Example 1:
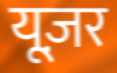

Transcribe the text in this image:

यूज़र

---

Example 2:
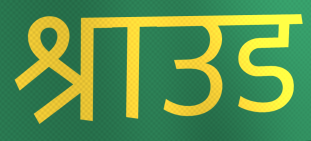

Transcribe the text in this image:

श्राउड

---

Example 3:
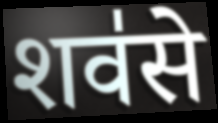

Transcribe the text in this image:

शव॑से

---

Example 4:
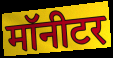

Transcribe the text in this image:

मॉनीटर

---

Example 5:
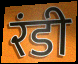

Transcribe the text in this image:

रंडी